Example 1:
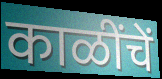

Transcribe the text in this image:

काळींचें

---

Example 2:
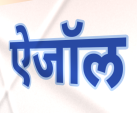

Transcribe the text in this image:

ऐजॉल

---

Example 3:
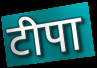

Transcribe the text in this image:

टीपा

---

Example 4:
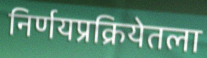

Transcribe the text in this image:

निर्णयप्रक्रियेतला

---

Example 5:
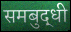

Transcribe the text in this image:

समबुद्धी